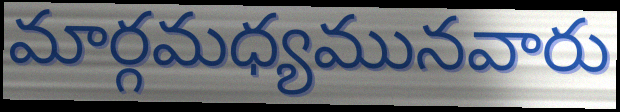
మార్గమధ్యమునవారు